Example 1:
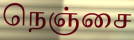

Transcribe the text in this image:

நெஞ்சை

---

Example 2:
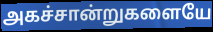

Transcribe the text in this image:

அகச்சான்றுகளையே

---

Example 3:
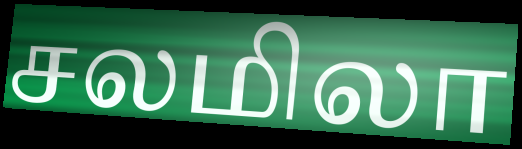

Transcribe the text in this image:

சலமிலா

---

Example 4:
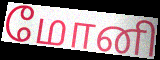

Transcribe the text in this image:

மோனி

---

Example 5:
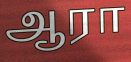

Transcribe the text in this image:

ஆரா